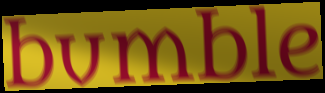
bumble